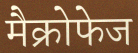
मैक्रोफेज